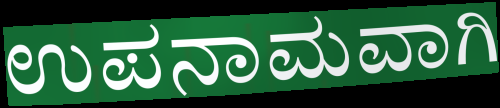
ಉಪನಾಮವಾಗಿ